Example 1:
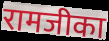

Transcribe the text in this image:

रामजीका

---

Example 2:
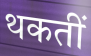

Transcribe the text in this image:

थकतीं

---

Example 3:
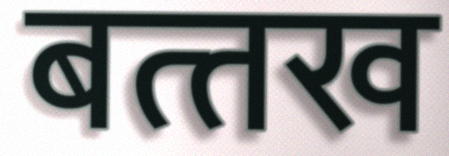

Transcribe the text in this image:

बत्‍तख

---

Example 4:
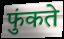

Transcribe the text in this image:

फुंकते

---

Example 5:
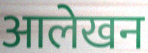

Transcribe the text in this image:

आलेखन